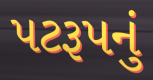
પટરૂપનું